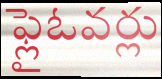
ఫ్లైఓవర్లు